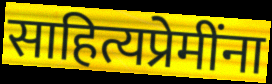
साहित्यप्रेमींना